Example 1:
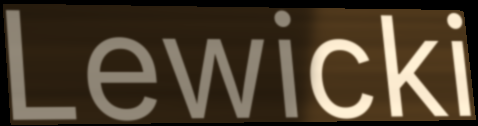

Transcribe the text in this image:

Lewicki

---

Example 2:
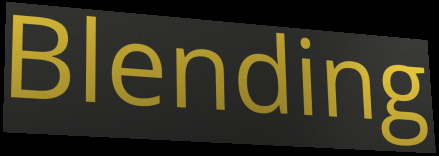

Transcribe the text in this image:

Blending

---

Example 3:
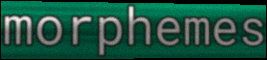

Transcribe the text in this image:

morphemes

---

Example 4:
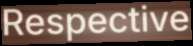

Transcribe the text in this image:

Respective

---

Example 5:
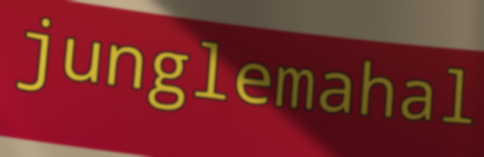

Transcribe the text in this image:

junglemahal